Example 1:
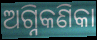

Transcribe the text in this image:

ଅଗ୍ନିକଣିକା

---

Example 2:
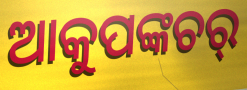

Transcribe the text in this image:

ଆକୁପଙ୍କଚର୍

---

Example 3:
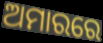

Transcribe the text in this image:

ଅମାରରେ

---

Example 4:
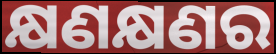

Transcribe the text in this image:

କ୍ଷଣକ୍ଷଣର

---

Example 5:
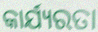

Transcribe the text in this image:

କାର୍ଯ୍ୟରତା